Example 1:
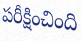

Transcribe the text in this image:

పరీక్షించింది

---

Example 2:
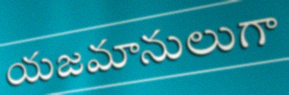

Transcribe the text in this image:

యజమానులుగా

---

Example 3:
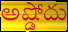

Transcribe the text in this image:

అష్డోదు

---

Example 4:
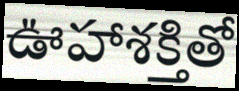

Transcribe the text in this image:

ఊహాశక్తితో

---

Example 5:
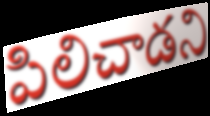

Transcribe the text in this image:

పిలిచాడని